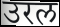
उरल